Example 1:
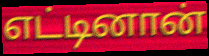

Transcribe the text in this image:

எட்டினான்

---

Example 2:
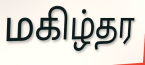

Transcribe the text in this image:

மகிழ்தர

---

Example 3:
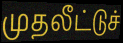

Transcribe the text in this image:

முதலீட்டுச்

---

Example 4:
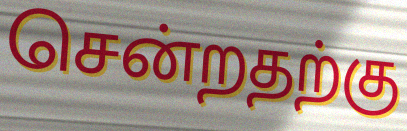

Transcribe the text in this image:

சென்றதற்கு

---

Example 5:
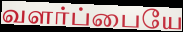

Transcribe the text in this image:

வளர்ப்பையே